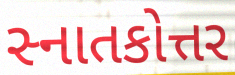
સ્નાતકોત્તર